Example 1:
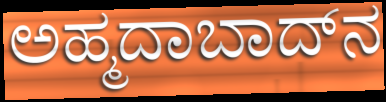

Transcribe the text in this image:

ಅಹ್ಮದಾಬಾದ್‌ನ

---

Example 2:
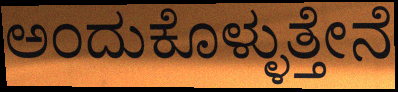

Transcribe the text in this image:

ಅಂದುಕೊಳ್ಳುತ್ತೇನೆ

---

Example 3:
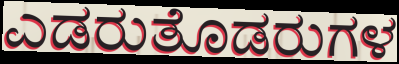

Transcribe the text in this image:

ಎಡರುತೊಡರುಗಳ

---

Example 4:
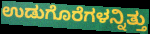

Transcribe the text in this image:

ಉಡುಗೊರೆಗಳನ್ನಿತ್ತು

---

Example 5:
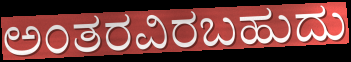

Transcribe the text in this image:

ಅಂತರವಿರಬಹುದು